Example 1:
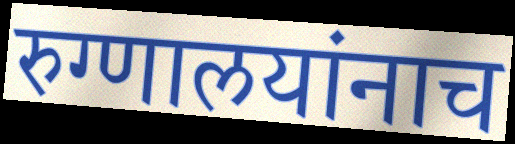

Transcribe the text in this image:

रुग्णालयांनाच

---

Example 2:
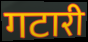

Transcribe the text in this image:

गटारी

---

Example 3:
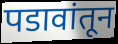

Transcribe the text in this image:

पडावांतून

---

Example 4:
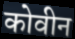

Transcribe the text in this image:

कोवीन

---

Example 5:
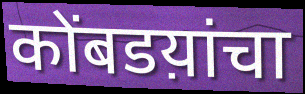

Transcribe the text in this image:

कोंबडय़ांचा